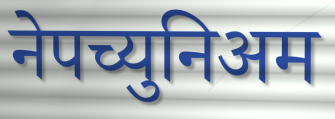
नेपच्युनिअम